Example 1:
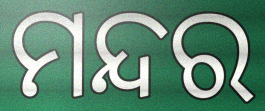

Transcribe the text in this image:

ମନ୍ଦର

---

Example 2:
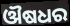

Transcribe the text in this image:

ଔଷଧର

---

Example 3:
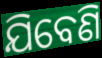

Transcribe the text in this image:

ଯିବେଣି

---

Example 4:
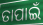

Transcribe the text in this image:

ତାପାଇଁ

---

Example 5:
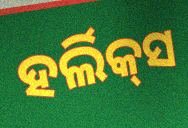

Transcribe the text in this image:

ହର୍ଲିକ୍‌ସ